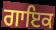
ਗਾਇਕ